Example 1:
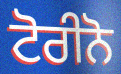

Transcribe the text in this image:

ਟੋਰੀਨੋ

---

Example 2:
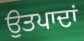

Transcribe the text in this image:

ਉਤਪਾਦਾਂ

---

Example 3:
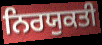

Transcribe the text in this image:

ਨਿਰਯੁਕਤੀ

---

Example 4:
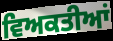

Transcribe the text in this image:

ਵਿਅਕਤੀਆਂ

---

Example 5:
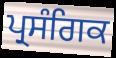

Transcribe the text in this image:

ਪ੍ਰਸੰਗਿਕ